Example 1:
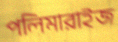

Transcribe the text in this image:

পলিমারাইজ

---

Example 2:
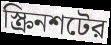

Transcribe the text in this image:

স্ক্রিনশটের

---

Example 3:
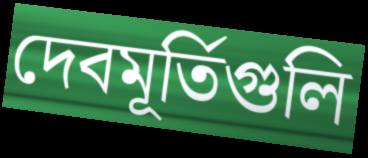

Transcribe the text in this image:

দেবমূর্তিগুলি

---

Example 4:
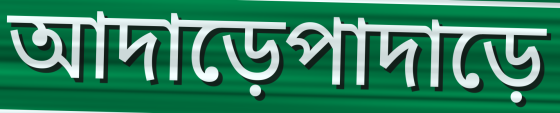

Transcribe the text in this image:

আদাড়েপাদাড়ে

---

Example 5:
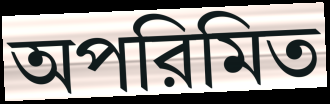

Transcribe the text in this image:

অপরিমিত